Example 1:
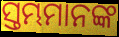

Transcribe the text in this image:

ସ୍ତମ୍ଭମାନଙ୍କ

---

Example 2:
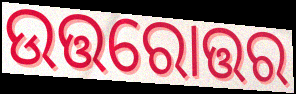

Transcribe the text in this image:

ଉତ୍ତରୋତ୍ତର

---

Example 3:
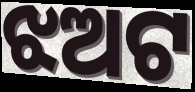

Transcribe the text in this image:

ଝଅଟ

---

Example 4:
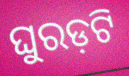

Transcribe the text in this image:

ଘୁରଡ଼ଟି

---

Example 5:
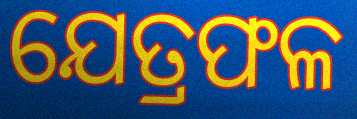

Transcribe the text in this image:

ଯେତ୍ରଫଳ